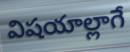
విషయాల్లాగే